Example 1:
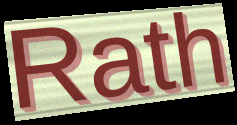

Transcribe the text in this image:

Rath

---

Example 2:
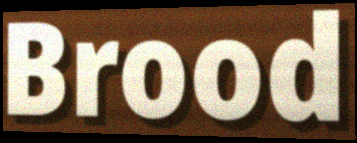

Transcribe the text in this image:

Brood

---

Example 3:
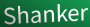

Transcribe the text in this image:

Shanker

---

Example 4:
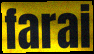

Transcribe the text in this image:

farai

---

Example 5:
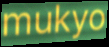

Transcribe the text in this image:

mukyo